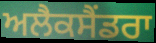
ਅਲੈਕਸੈਂਡਰਾ